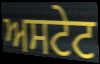
ਅਸਟੇਟ